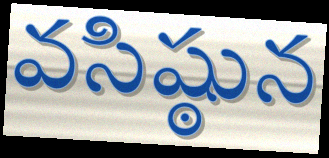
వసిష్ఠున